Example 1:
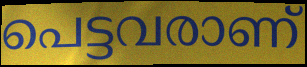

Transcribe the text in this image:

പെട്ടവരാണ്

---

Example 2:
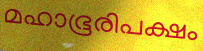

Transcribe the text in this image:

മഹാഭൂരിപക്ഷം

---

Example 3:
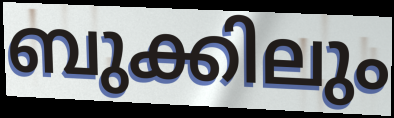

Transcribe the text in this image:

ബുക്കിലും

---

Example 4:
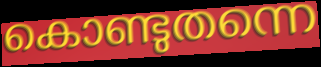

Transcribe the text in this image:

കൊണ്ടുതന്നെ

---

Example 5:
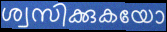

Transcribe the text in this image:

ശ്വസിക്കുകയോ